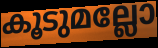
കൂടുമല്ലോ